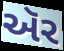
ઍર